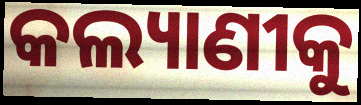
କଲ୍ୟାଣୀକୁ